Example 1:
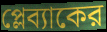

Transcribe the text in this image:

প্লেব্যাকের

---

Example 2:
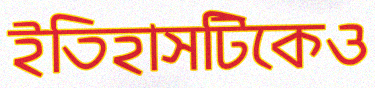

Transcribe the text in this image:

ইতিহাসটিকেও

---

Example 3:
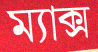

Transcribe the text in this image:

ম্যাক্স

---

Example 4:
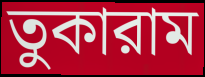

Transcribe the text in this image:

তুকারাম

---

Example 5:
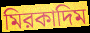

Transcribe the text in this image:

মিরকাদিম